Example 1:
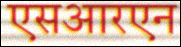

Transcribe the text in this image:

एसआरएन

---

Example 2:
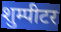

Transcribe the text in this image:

शुम्पीटर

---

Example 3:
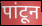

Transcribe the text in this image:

पांटून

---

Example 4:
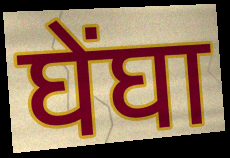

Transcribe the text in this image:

घेंघा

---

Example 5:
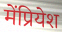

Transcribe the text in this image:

मेंप्रियेश